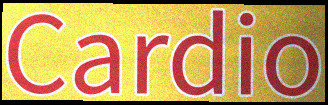
Cardio